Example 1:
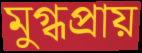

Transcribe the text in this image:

মুগ্ধপ্রায়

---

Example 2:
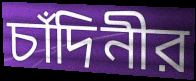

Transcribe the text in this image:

চাঁদিনীর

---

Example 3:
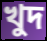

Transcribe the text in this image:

খুদ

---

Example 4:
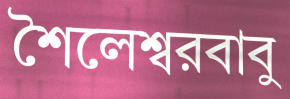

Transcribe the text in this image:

শৈলেশ্বরবাবু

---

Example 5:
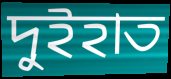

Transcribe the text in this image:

দুইহাত